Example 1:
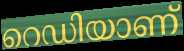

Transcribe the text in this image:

റെഡിയാണ്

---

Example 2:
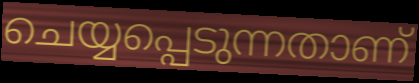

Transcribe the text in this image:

ചെയ്യപ്പെടുന്നതാണ്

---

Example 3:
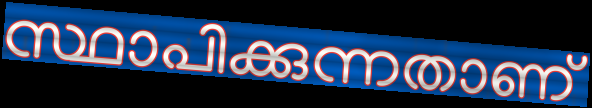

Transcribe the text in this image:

സ്ഥാപിക്കുന്നതാണ്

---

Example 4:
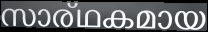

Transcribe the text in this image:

സാര്ഥകമായ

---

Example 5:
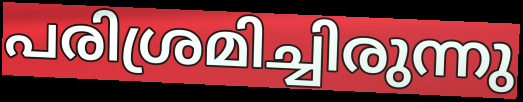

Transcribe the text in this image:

പരിശ്രമിച്ചിരുന്നു